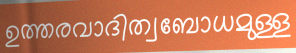
ഉത്തരവാദിത്വബോധമുള്ള